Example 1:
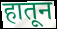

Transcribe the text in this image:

हातून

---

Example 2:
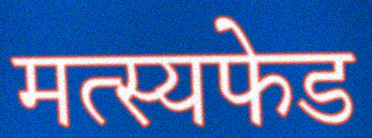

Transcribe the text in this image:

मत्स्यफेड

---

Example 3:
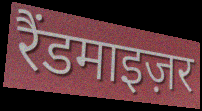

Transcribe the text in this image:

रैंडमाइज़र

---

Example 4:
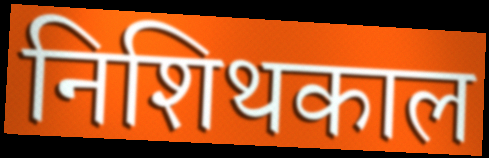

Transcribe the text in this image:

निशिथकाल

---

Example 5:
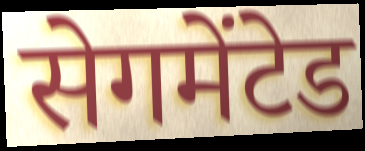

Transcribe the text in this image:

सेगमेंटेड